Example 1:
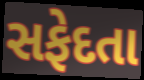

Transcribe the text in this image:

સફેદતા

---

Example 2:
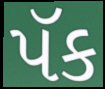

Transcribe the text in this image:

પૅક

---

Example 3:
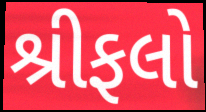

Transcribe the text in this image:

શ્રીફલો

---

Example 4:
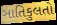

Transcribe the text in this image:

ઞાતિકુલતો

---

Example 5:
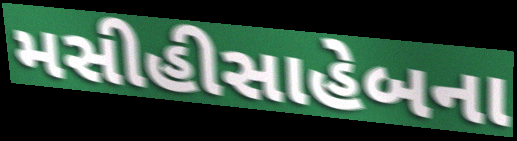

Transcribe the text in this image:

મસીહીસાહેબના